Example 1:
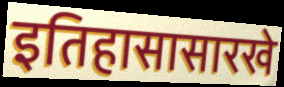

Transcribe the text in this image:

इतिहासासारखे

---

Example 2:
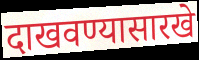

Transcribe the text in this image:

दाखवण्यासारखे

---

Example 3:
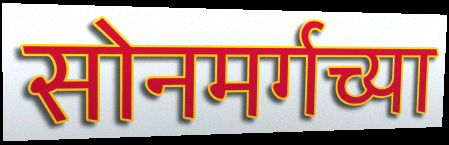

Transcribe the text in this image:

सोनमर्गच्या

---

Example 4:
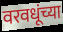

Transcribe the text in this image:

वरवधूंच्या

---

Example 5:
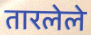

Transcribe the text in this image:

तारलेले